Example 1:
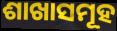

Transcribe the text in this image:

ଶାଖାସମୂହ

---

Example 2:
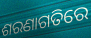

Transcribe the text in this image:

ଶରଣାଗତିରେ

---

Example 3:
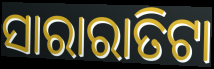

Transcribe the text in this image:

ସାରାରାତିଟା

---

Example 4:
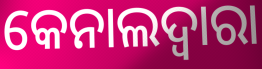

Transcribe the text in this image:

କେନାଲଦ୍ଵାରା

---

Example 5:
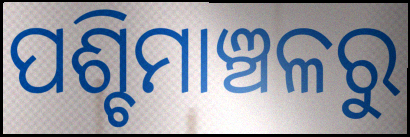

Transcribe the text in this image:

ପଶ୍ଚିମାଞ୍ଚଳରୁ